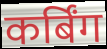
कर्बिंग